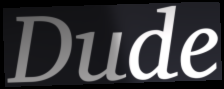
Dude